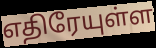
எதிரேயுள்ள